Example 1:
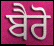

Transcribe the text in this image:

ਬੈਰੋ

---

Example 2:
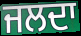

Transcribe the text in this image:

ਜਲਦਾ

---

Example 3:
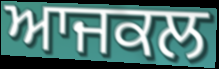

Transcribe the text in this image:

ਆਜਕਲ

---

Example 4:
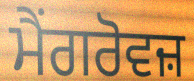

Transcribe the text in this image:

ਮੈਂਗਰੋਵਜ਼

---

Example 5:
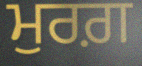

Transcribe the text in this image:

ਮੁਰਗ਼